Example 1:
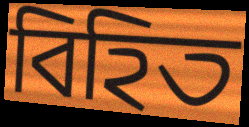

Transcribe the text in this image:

বিহিত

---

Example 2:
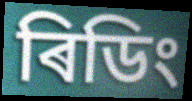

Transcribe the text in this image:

ৰিডিং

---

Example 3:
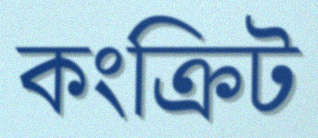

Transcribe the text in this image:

কংক্ৰিট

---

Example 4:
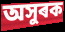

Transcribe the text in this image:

অসুৰক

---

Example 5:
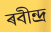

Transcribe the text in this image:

ৰবীন্দ্ৰ